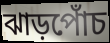
ঝাড়পোঁচ